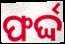
ଫର୍ଦ୍ଦ